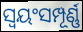
ସ୍ବୟଂସମ୍ପୂର୍ଣ୍ଣ